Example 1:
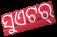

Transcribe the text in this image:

ସୁଏଟର୍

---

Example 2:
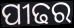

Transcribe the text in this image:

ପୀଢର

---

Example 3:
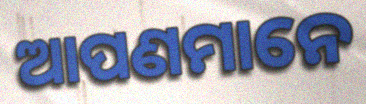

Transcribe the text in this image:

ଆପଣମାନେ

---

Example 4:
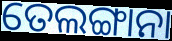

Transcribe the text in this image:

ତେଲଙ୍ଗାନା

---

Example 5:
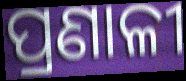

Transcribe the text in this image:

ପ୍ରଣାଳୀ